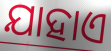
ଯାହାଏ